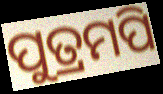
ପୁତ୍ରମପି